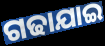
ଗଢାଯାଇ